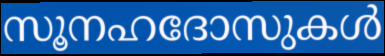
സൂനഹദോസുകൾ